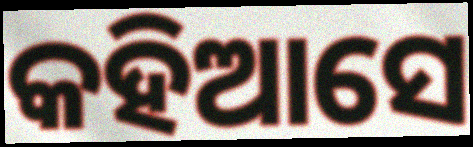
କହିଆସେ